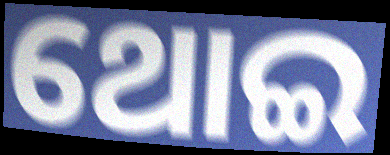
ଥୋଇ